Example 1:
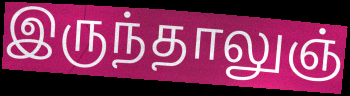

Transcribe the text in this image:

இருந்தாலுஞ்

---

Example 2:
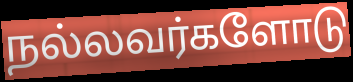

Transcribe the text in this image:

நல்லவர்களோடு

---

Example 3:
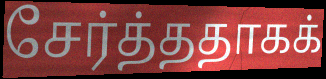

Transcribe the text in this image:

சேர்த்ததாகக்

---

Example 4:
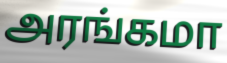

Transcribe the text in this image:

அரங்கமா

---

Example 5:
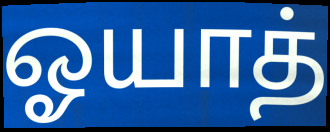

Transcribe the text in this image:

ஓயாத்